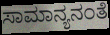
ಸಾಮಾನ್ಯನಂತೆ